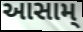
આસામ્